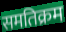
समतिक्रम